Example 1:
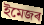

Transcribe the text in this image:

ইমেজৰ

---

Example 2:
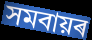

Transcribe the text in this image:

সমবায়ৰ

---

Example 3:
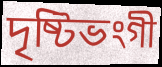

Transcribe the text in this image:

দৃষ্টিভংগী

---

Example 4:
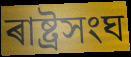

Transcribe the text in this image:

ৰাষ্ট্ৰসংঘ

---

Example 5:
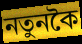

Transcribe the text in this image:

নতুনকৈ